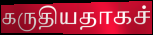
கருதியதாகச்